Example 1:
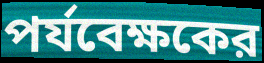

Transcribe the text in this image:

পর্যবেক্ষকের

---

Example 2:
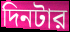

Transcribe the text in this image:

দিনটার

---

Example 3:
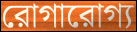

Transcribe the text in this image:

রোগারোগ্য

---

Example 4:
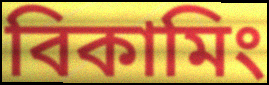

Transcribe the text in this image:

বিকামিং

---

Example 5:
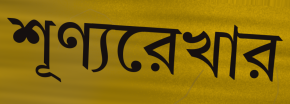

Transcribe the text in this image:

শূণ্যরেখার